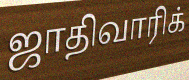
ஜாதிவாரிக்